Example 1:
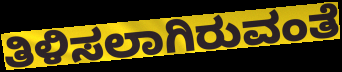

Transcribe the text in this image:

ತಿಳಿಸಲಾಗಿರುವಂತೆ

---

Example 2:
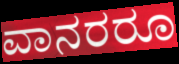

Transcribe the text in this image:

ವಾನರರೂ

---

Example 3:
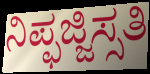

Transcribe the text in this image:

ನಿಪ್ಫಜ್ಜಿಸ್ಸತಿ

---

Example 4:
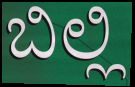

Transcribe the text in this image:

ಬಿಲ್ಲಿ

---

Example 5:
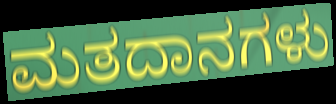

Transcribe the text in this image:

ಮತದಾನಗಳು